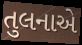
તુલનાએ